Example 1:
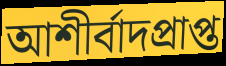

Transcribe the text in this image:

আশীর্বাদপ্রাপ্ত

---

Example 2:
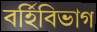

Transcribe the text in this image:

বর্হিবিভাগ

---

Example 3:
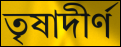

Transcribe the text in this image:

তৃষাদীর্ণ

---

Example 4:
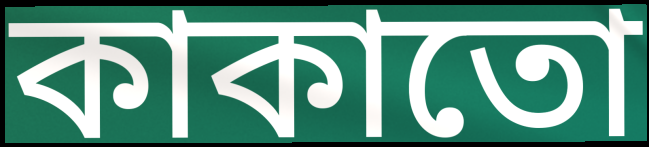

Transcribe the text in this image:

কাকাতো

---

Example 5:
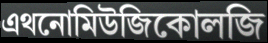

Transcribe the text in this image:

এথনোমিউজিকোলজি